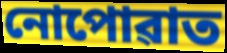
নোপোৱাত